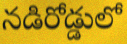
నడిరోడ్డులో